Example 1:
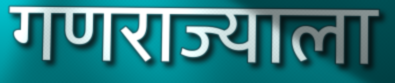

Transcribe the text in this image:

गणराज्याला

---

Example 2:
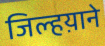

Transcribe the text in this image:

जिल्हय़ाने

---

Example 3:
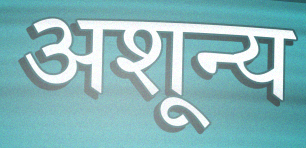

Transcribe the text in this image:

अशून्य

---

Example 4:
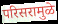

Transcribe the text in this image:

परिसरामुळे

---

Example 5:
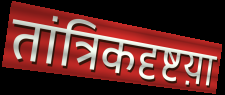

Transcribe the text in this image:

तांत्रिकदृष्टय़ा